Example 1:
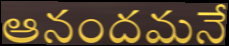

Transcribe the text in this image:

ఆనందమనే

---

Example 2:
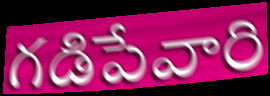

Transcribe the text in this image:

గడిపేవారి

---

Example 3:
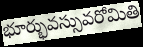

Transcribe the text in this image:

భూర్భువస్సువరోమితి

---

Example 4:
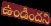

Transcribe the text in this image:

ఉండిందని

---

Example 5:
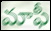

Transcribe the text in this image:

మాఫీ